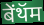
बेंथॅम